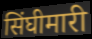
सिंघीमारी